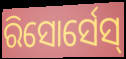
ରିସୋର୍ସେସ୍